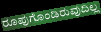
ರೂಪುಗೊಂಡಿರುವುದಿಲ್ಲ